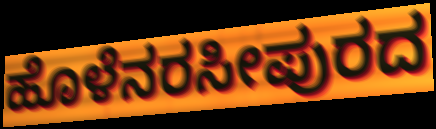
ಹೊಳೆನರಸೀಪುರದ